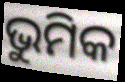
ଭୁମିକ